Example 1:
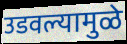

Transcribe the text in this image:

उडवल्यामुळे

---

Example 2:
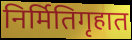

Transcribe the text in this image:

निर्मितिगृहात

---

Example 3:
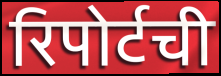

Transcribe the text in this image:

रिपोर्टची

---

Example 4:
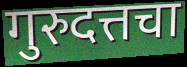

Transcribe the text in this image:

गुरुदत्तचा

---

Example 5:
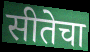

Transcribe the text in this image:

सीतेचा